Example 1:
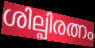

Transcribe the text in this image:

ശില്പിരത്നം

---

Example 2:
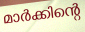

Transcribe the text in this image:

മാർക്കിന്റെ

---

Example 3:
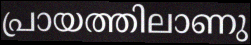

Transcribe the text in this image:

പ്രായത്തിലാണു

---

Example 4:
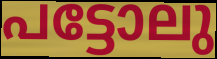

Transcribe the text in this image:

പട്ടോലു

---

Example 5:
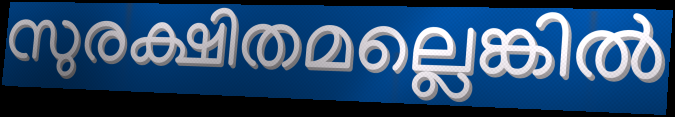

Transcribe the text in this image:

സുരക്ഷിതമല്ലെങ്കിൽ